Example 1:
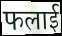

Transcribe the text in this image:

फलाई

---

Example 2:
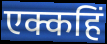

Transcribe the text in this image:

एक्कहिं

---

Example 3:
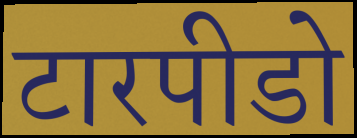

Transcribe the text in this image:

टारपीडो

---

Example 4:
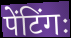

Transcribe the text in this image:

पेंटिंगः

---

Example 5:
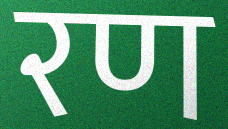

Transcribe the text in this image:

रण